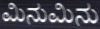
ಮಿನುಮಿನು